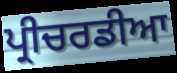
ਪ੍ਰੀਚਰਡੀਆ